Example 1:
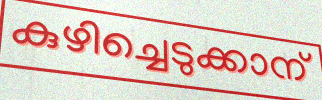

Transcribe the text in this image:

കുഴിച്ചെടുക്കാന്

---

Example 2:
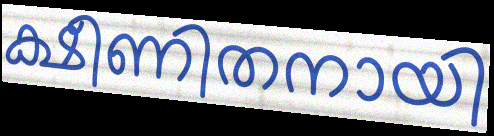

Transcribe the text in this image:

ക്ഷീണിതനായി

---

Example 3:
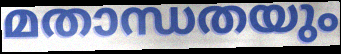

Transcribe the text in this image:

മതാന്ധതയും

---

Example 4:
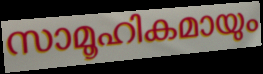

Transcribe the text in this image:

സാമൂഹികമായും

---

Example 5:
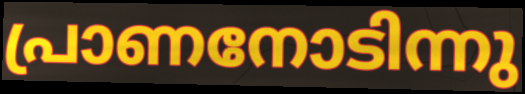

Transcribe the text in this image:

പ്രാണനോടിന്നു